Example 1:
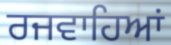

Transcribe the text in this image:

ਰਜਵਾਹਿਆਂ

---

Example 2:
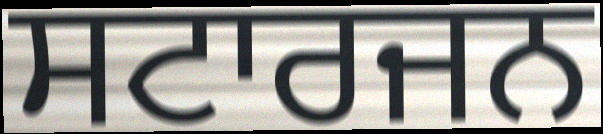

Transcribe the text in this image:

ਸਟਾਰਜਨ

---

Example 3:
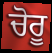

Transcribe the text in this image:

ਚੋਰੂ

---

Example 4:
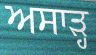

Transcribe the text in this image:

ਅਸਾੜ੍ਹ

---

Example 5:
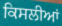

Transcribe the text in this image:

ਕਿਸਲੀਆਂ